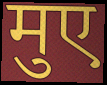
मुए